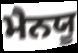
ਮੈਨਯੂ